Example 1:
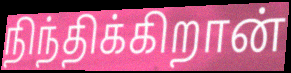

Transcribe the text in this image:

நிந்திக்கிறான்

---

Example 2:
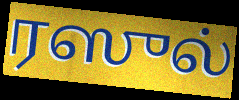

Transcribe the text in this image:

ரஸுல்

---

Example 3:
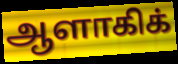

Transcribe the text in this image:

ஆளாகிக்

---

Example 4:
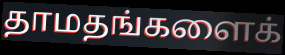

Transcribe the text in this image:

தாமதங்களைக்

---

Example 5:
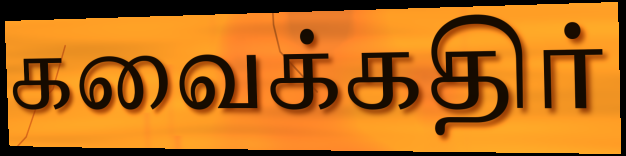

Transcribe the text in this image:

கவைக்கதிர்